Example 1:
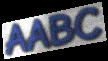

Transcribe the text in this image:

AABC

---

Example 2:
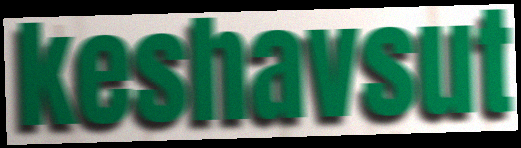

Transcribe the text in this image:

keshavsut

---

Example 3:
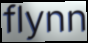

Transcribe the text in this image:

flynn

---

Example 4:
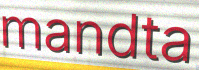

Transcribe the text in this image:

mandta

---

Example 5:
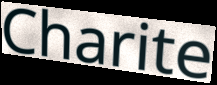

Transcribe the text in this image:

Charite